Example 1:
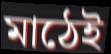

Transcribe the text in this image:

মাঠেই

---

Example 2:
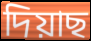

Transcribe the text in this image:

দিয়াছ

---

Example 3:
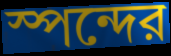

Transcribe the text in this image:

স্পন্দের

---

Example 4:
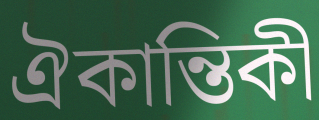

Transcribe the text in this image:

ঐকান্তিকী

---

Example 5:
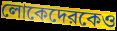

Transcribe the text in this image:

লোকেদেরকেও